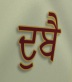
ਦੁਬੈ